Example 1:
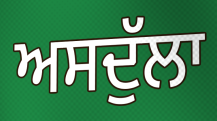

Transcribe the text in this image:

ਅਸਦੁੱਲਾ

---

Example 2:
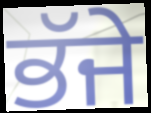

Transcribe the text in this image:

ਭੱਜੇ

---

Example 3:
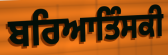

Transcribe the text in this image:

ਬਰਿਆਤਿੰਸਕੀ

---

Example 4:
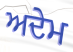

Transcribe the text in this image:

ਅਦੇਮ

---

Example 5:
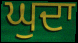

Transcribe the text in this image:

ਘੁਦਾ